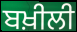
ਬਖ਼ੀਲੀ